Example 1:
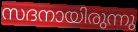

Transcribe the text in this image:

സദനായിരുന്നു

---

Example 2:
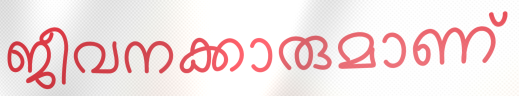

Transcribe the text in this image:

ജീവനക്കാരുമാണ്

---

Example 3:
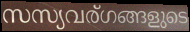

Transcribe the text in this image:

സസ്യവര്ഗങ്ങളുടെ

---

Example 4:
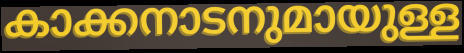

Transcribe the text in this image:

കാക്കനാടനുമായുള്ള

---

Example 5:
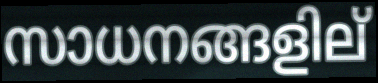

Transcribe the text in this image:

സാധനങ്ങളില്